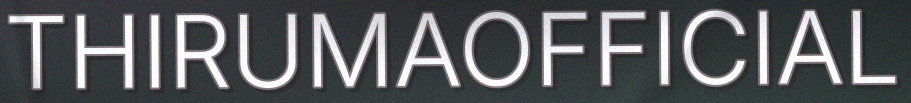
THIRUMAOFFICIAL